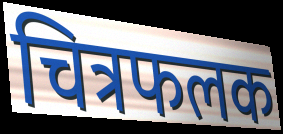
चित्रफलक